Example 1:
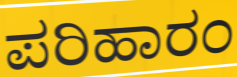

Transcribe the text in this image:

ಪರಿಹಾರಂ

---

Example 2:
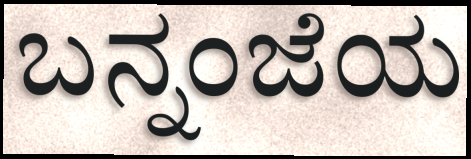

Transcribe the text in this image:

ಬನ್ನಂಜೆಯ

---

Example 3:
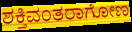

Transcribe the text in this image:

ಶಕ್ತಿವಂತರಾಗೋಣ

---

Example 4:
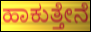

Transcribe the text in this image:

ಹಾಕುತ್ತೇನೆ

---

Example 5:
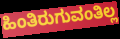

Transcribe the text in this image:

ಹಿಂತಿರುಗುವಂತಿಲ್ಲ